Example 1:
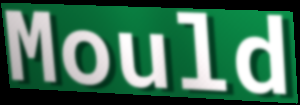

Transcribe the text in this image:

Mould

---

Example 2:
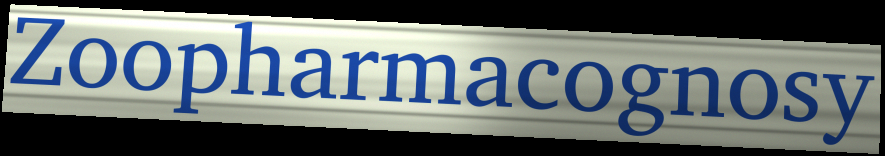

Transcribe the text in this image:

Zoopharmacognosy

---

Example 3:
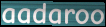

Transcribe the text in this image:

aadaroo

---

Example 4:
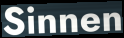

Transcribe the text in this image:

Sinnen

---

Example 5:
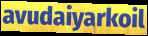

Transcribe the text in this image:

avudaiyarkoil